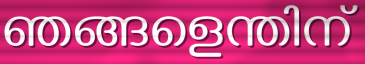
ഞങ്ങളെന്തിന്